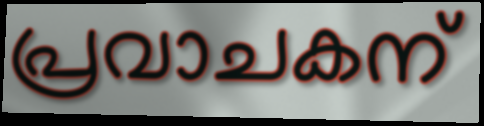
പ്രവാചകന്